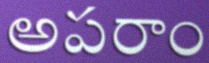
అపరాం